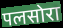
पलसोरा